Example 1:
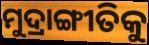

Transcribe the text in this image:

ମୁଦ୍ରାଙ୍ଗୀତିକୁ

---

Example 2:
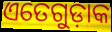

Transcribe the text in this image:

ଏତେଗୁଡ଼ାକ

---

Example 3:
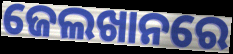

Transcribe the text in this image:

ଜେଲଖାନରେ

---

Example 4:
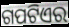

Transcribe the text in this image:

ଗପଟିଏର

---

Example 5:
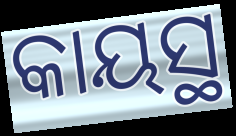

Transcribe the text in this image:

କାୟସ୍ଥ